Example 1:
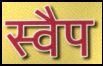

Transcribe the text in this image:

स्वैप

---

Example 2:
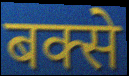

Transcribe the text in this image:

बक्से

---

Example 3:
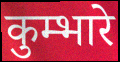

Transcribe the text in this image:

कुम्भारे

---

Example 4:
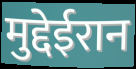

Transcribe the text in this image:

मुद्देईरान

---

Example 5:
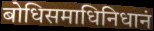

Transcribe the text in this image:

बोधिसमाधिनिधानं